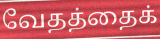
வேதத்தைக்